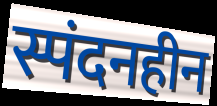
स्पंदनहीन